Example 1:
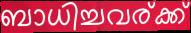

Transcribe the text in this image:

ബാധിച്ചവര്ക്ക്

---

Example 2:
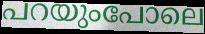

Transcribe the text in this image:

പറയുംപോലെ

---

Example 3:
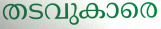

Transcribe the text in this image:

തടവുകാരെ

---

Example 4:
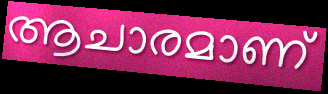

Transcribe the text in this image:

ആചാരമാണ്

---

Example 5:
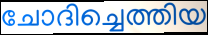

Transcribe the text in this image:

ചോദിച്ചെത്തിയ